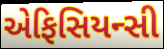
એફિસિયન્સી